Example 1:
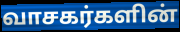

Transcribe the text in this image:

வாசகர்களின்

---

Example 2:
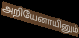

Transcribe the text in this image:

அறியேனாயினும்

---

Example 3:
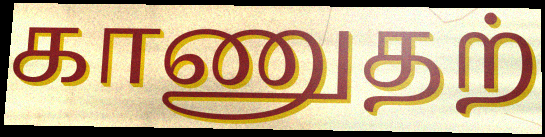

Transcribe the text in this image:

காணுதற்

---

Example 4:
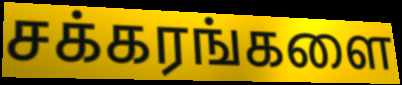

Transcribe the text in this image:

சக்கரங்களை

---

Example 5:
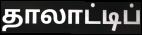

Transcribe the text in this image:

தாலாட்டிப்